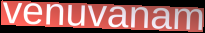
venuvanam